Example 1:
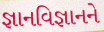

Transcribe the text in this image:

જ્ઞાનવિજ્ઞાનને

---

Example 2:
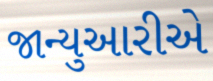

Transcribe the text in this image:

જાન્યુઆરીએ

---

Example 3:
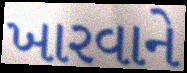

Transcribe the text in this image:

ખારવાને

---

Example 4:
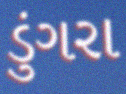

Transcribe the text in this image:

ડુંગરા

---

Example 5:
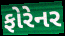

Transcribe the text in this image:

ફોરેનર